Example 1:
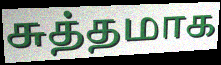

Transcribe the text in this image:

சுத்தமாக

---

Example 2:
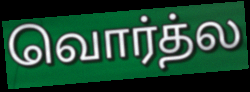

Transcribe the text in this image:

வொர்த்ல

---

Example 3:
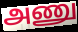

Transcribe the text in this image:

அணு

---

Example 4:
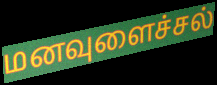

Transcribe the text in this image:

மனவுளைச்சல்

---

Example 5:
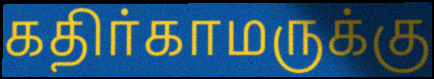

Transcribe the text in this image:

கதிர்காமருக்கு